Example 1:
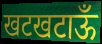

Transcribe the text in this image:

खटखटाऊँ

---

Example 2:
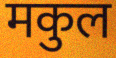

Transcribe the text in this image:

मकुल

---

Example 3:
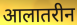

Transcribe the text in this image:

आलातरीन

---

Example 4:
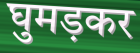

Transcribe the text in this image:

घुमड़कर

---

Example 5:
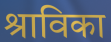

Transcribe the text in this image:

श्राविका